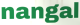
nangal